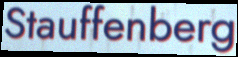
Stauffenberg